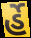
ર્હે